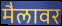
मैलावर